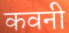
कवनी